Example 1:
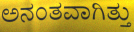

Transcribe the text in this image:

ಅನಂತವಾಗಿತ್ತು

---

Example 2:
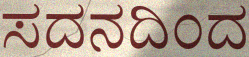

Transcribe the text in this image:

ಸದನದಿಂದ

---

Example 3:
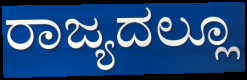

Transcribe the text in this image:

ರಾಜ್ಯದಲ್ಲೂ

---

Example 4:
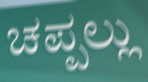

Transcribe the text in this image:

ಚಪ್ಪಲ್ಲು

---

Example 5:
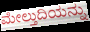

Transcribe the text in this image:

ಮೇಲ್ತುದಿಯನ್ನು